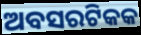
ଅବସରଟିକକ